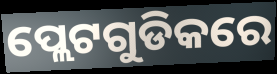
ପ୍ଲେଟଗୁଡିକରେ